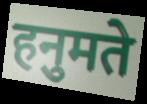
हनुमते